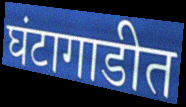
घंटागाडीत